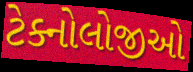
ટેક્નોલોજીઓ